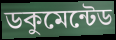
ডকুমেন্টেড